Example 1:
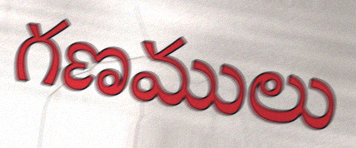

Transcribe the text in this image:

గణములు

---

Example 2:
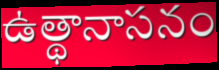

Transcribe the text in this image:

ఉత్థానాసనం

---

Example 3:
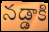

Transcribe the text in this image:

నడ్డాకి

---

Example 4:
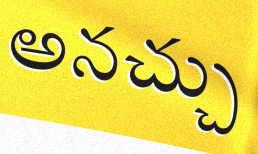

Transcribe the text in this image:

అనచ్చు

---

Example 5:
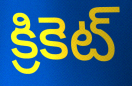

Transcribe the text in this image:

క్రికెట్